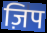
ज़िप